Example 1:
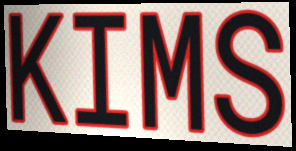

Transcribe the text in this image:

KIMS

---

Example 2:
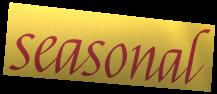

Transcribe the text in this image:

seasonal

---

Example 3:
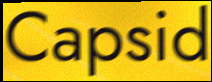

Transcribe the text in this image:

Capsid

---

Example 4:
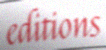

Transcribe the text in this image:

editions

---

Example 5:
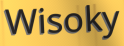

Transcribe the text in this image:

Wisoky